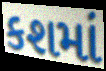
કશમાં